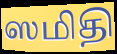
ஸமிதி